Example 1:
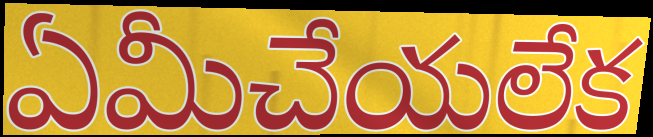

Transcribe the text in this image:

ఏమీచేయలేక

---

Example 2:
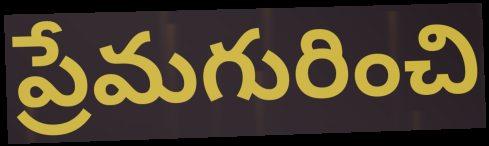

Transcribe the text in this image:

ప్రేమగురించి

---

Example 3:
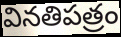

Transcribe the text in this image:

వినతిపత్రం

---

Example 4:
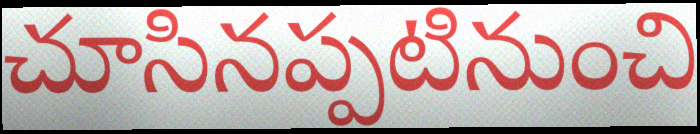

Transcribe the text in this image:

చూసినప్పటినుంచి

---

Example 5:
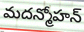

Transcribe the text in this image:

మదన్మోహన్